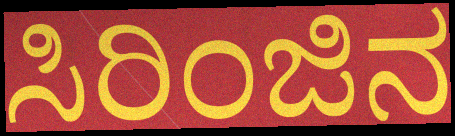
ಸಿರಿಂಜಿನ